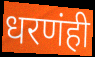
धरणंही